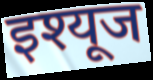
इश्यूज